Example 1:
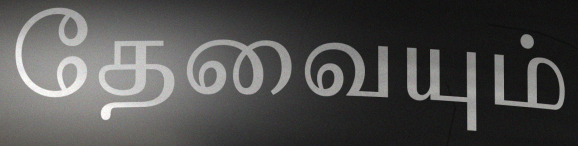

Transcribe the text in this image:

தேவையும்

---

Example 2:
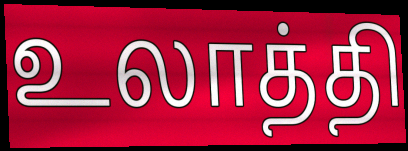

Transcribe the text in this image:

உலாத்தி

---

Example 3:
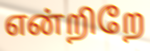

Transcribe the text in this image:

என்றிறே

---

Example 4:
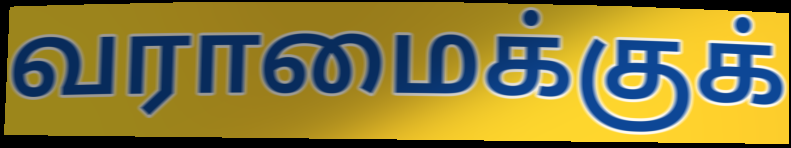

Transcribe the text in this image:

வராமைக்குக்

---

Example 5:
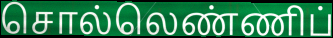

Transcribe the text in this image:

சொல்லெண்ணிப்